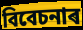
বিবেচনাৰ